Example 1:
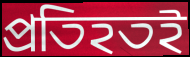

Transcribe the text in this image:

প্রতিহতই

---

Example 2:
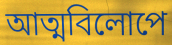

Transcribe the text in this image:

আত্মবিলোপে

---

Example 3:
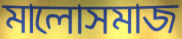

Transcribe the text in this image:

মালোসমাজ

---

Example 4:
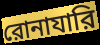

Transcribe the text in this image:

রোনাযারি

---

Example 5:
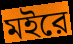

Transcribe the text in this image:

মইরে